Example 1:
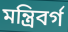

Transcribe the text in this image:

মন্ত্রিবর্গ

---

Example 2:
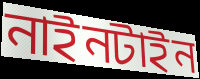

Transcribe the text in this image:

নাইনটাইন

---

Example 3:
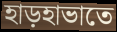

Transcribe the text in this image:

হাড়হাভাতে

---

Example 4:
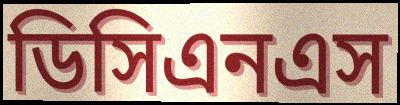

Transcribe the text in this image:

ডিসিএনএস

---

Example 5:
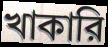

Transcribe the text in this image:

খাকারি